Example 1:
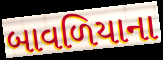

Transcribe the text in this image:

બાવળિયાના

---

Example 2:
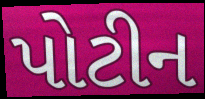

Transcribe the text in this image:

પોટીન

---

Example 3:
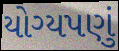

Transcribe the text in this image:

યોગ્યપણું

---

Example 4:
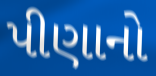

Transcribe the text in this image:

પીણાનો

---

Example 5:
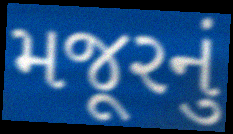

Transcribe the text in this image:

મજૂરનું